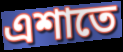
এশাতে